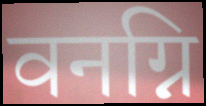
वनग्नि